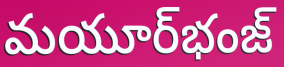
మయూర్‌భంజ్